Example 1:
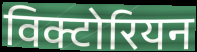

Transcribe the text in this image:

विक्टोरियन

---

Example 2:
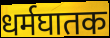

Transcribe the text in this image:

धर्मघातक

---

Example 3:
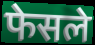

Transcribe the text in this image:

फेसले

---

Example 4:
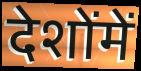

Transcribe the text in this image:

देशोंमें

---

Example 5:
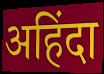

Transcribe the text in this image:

अहिंदा